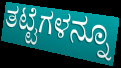
ತಟ್ಟೆಗಳನ್ನೂ